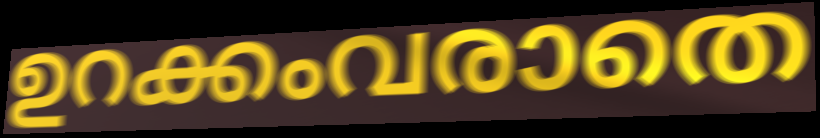
ഉറക്കംവരാതെ